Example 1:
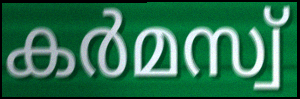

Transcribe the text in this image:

കർമസ്വ്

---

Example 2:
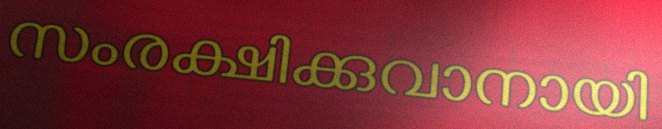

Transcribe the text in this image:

സംരക്ഷിക്കുവാനായി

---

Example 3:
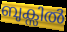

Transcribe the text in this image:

ബുക്സിൽ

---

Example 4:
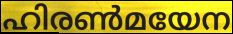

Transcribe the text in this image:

ഹിരൺമയേന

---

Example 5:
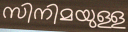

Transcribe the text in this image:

സിനിമയുള്ള